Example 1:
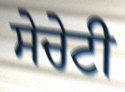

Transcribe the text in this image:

ਸੇਚੇਟੀ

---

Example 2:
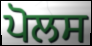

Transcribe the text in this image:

ਪੋਲਸ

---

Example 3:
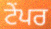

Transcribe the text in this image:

ਟੇਂਪਰ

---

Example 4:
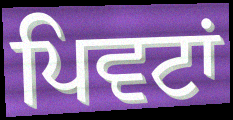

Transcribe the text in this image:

ਪਿਵਟਾਂ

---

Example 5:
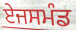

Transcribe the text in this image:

ਏਜਸਮੰਡ